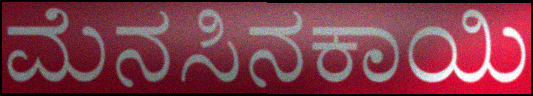
ಮೆನಸಿನಕಾಯಿ